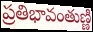
ప్రతిభావంతుణ్ణి